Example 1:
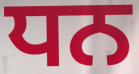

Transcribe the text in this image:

ਧਨ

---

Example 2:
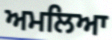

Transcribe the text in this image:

ਅਮਲਿਆ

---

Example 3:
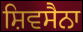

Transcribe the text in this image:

ਸ਼ਿਵਸੈਨਾ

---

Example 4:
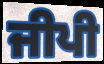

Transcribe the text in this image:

ਜੀਪੀ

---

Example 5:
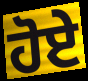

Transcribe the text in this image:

ਹੋਏੇ